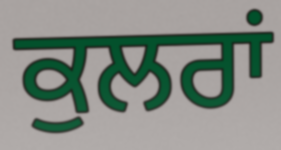
ਕੁਲਰਾਂ